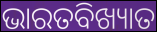
ଭାରତବିଖ୍ୟାତ